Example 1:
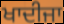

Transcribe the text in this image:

ਖਾਦੀਜਾ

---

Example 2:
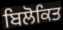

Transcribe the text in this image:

ਬਿਲੋਕਿਤ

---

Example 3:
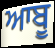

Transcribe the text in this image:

ਆਬੂ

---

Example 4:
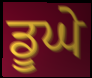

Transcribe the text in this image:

ਡੂਘੇ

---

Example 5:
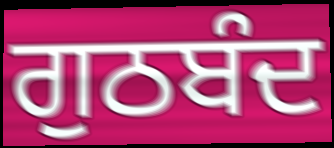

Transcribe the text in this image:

ਗੁਠਬੰਦ